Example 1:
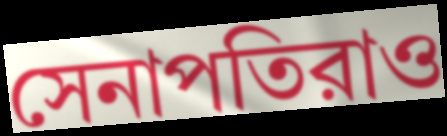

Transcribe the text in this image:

সেনাপতিরাও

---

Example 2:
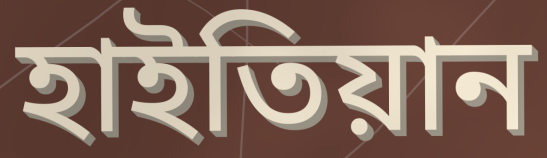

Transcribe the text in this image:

হাইতিয়ান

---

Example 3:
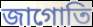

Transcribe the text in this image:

জাগোতি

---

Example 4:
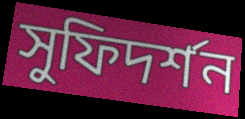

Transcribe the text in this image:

সুফিদর্শন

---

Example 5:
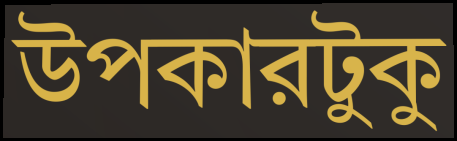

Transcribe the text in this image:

উপকারটুকু